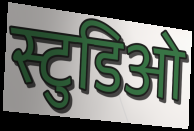
स्टुडिओ